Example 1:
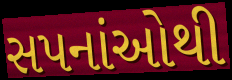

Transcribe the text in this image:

સપનાંઓથી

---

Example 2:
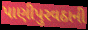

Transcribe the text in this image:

પાણીપુરવઠાની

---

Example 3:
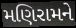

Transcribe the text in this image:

મણિરામને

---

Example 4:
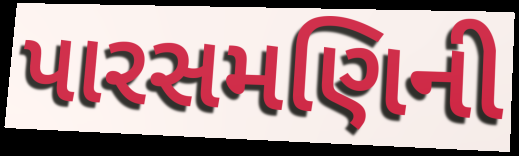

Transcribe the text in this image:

પારસમણિની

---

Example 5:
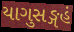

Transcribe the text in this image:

યાગુસઙ્ગહં